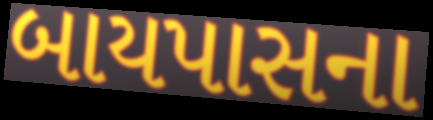
બાયપાસના